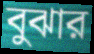
বুঝার